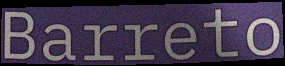
Barreto